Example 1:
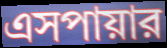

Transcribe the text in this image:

এসপায়ার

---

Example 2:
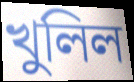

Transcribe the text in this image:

খুলিল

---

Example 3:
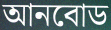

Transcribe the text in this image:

আনবোড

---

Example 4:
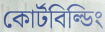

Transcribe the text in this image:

কোর্টবিল্ডিং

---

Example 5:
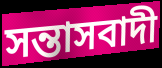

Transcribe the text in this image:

সন্তাসবাদী